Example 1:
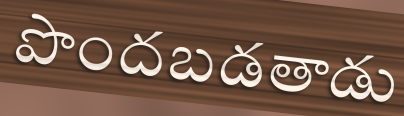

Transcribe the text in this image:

పొందబడతాడు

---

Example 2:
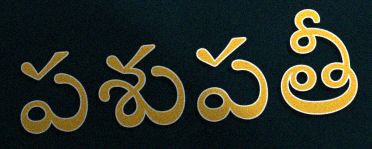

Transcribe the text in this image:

పశుపతీ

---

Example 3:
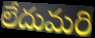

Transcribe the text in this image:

లేదుమరి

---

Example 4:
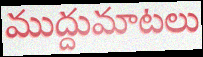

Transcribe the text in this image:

ముద్దుమాటలు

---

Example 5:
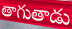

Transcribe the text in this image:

తాగుతాడు